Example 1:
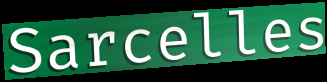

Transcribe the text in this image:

Sarcelles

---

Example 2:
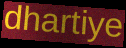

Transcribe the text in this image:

dhartiye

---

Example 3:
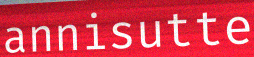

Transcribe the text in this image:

annisutte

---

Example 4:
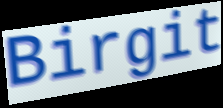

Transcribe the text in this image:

Birgit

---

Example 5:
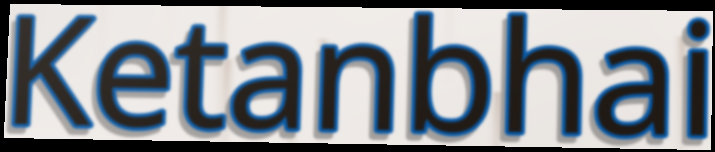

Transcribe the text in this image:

Ketanbhai